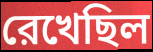
রেখেছিল